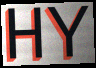
HY